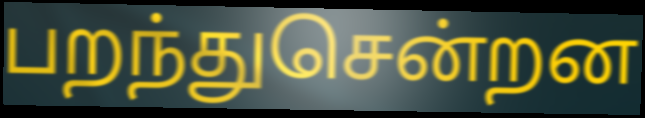
பறந்துசென்றன